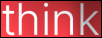
think